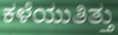
ಕಳೆಯುತಿತ್ತು